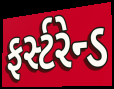
ફર્સ્ટરેન્ડ